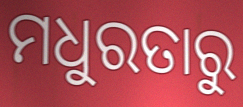
ମଧୁରତାରୁ